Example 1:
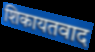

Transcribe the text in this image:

शिकायतवाद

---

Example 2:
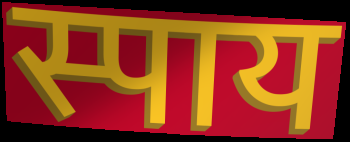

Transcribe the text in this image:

स्पाय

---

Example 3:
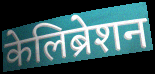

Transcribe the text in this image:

केलिब्रेशन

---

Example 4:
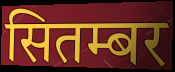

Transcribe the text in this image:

सितम्बर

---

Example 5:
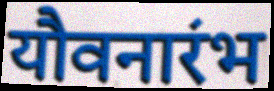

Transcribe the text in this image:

यौवनारंभ